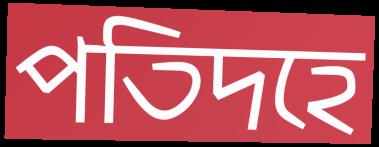
পতিদহে